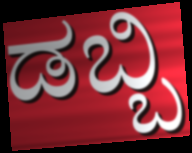
ಡಬ್ಬಿ